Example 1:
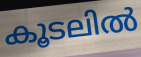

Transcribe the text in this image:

കൂടലിൽ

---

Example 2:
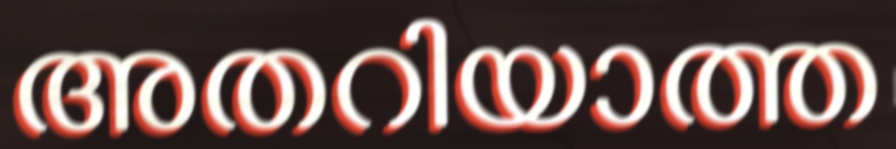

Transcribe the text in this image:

അതറിയാത്ത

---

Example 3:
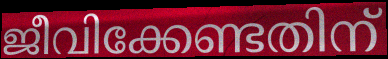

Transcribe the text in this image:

ജീവിക്കേണ്ടതിന്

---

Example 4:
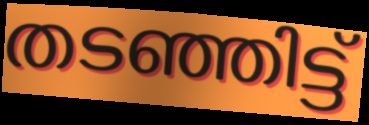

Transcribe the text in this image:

തടഞ്ഞിട്ട്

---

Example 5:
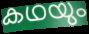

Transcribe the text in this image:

കഥയും